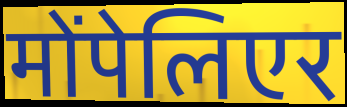
मोंपेलिएर